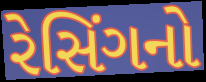
રેસિંગનો